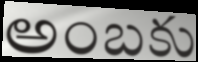
అంబకు